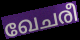
ഖേചരീ